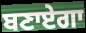
ਬਣਾਏਗਾ